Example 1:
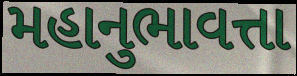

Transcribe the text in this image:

મહાનુભાવત્તા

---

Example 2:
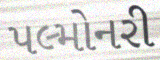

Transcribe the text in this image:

પલ્મોનરી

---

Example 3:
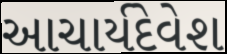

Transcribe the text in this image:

આચાર્યદેવેશ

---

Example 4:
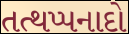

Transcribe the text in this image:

તત્થપ્પનાદો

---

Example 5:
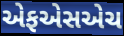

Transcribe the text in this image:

એફએસએચ